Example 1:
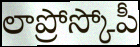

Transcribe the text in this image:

లాప్రోస్కోపీ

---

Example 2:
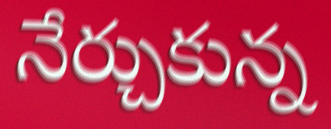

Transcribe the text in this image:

నేర్చుకున్న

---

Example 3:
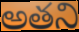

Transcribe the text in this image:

అతని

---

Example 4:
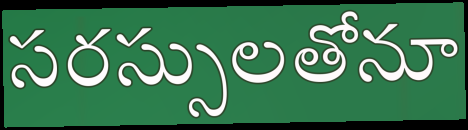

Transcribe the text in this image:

సరస్సులతోనూ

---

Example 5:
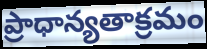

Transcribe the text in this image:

ప్రాధాన్యతాక్రమం